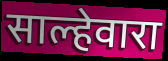
साल्हेवारा